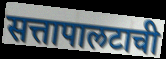
सत्तापालटाची